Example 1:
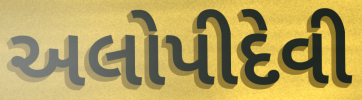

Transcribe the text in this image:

અલોપીદેવી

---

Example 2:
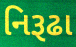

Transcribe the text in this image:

નિરૂઢા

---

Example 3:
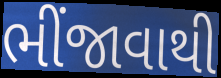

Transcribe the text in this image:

ભીંજાવાથી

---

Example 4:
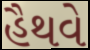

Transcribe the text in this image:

હૈથવે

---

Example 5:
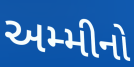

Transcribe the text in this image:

અમ્મીનો